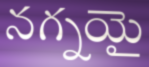
నగ్నయై